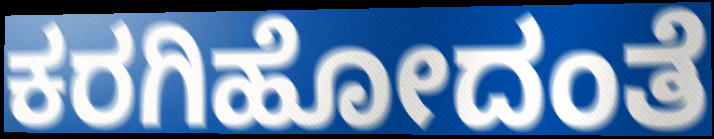
ಕರಗಿಹೋದಂತೆ